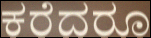
ಕರೆದರೂ